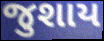
જુશાય